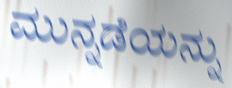
ಮುನ್ನಡೆಯನ್ನು